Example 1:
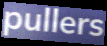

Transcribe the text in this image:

pullers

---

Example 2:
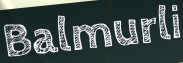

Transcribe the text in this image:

Balmurli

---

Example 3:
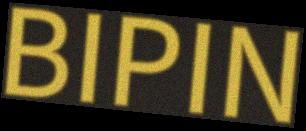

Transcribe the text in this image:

BIPIN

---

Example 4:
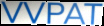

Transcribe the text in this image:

VVPAT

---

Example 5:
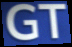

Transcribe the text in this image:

GT